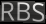
RBS